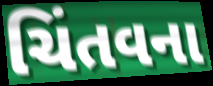
ચિંતવના